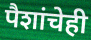
पैशांचेही